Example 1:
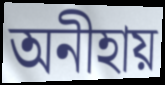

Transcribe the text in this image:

অনীহায়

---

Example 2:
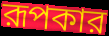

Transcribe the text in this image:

রূপকার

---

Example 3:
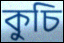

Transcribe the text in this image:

কুচি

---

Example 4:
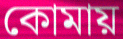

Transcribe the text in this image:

কোমায়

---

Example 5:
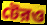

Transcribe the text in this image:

টেরও